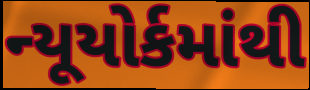
ન્યૂયોર્કમાંથી